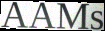
AAMs